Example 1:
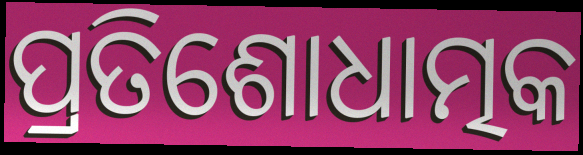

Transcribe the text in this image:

ପ୍ରତିଶୋଧାତ୍ମକ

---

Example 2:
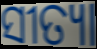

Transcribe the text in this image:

ସୀତ୍ୟା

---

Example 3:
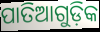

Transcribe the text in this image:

ପାତିଆଗୁଡ଼ିକ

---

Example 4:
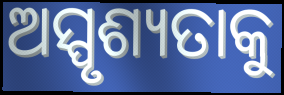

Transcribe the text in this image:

ଅସ୍ପୃଶ୍ୟତାକୁ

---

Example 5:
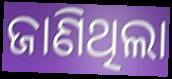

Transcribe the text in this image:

ଜାଣିଥିଲା